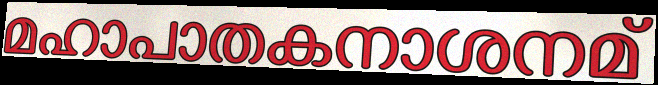
മഹാപാതകനാശനമ്